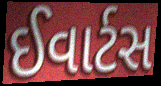
ઈવાર્ટસ